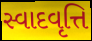
સ્વાદવૃત્તિ